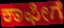
ಕಾಫೀಗೆ